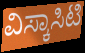
ವಿಸ್ಕಾಸಿಟಿ